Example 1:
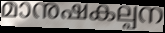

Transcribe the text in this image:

മാനുഷകല്പന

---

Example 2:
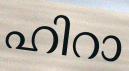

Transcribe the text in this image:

ഹിറാ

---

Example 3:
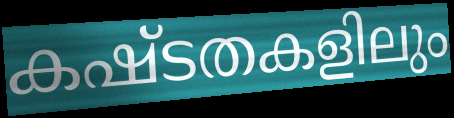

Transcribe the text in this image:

കഷ്ടതകളിലും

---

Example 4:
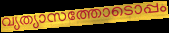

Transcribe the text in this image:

വ്യത്യാസത്തോടൊപ്പം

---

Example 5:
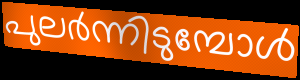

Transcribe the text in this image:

പുലർന്നിടുമ്പോൾ